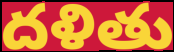
దళితు